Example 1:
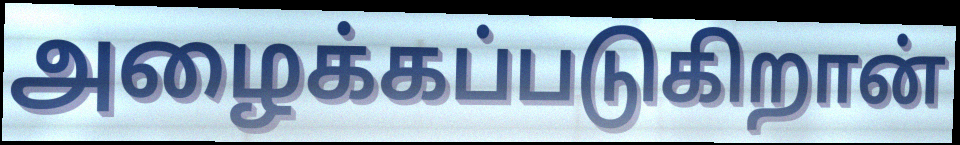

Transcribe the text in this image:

அழைக்கப்படுகிறான்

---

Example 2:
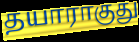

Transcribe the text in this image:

தயாராகுது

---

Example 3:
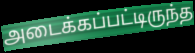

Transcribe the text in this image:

அடைக்கப்பட்டிருந்த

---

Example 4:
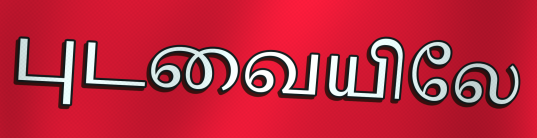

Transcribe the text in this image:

புடவையிலே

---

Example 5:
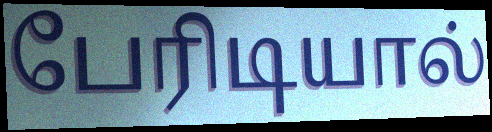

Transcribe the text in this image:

பேரிடியால்